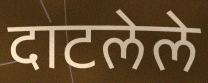
दाटलेले